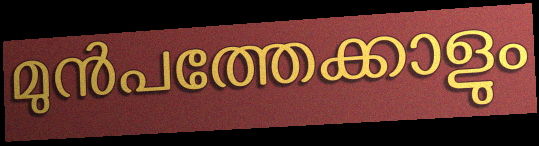
മുൻപത്തേക്കാളും